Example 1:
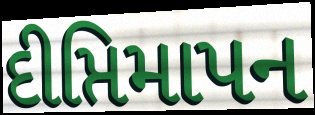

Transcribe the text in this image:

દીપ્તિમાપન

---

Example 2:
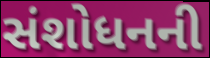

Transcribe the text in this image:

સંશોધનની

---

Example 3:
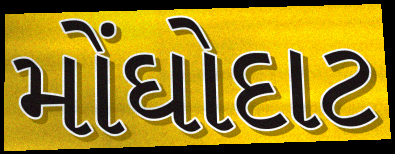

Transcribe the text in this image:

મોંઘોદાટ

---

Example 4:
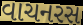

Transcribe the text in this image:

વાચનરસ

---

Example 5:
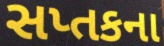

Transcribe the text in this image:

સપ્તકના